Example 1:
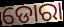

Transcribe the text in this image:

ଡୋରା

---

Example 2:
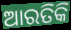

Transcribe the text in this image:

ଆରତିକି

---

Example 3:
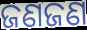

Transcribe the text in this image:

ଜଣଜଣ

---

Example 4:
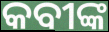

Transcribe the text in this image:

କବୀଙ୍କ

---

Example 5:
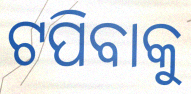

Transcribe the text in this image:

ଟପିବାକୁ